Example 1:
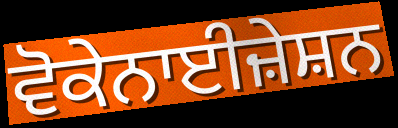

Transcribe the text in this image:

ਵੋਕੇਨਾਈਜ਼ੇਸ਼ਨ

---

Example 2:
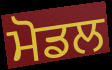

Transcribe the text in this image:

ਮੋਡਲ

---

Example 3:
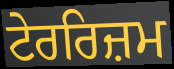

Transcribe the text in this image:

ਟੇਰਰਿਜ਼ਮ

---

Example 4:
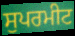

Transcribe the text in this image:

ਸੁਪਰਮੀਟ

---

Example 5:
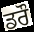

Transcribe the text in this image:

ਡਰੌ